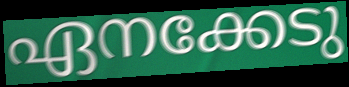
ഏനക്കേടു